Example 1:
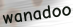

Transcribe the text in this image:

wanadoo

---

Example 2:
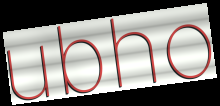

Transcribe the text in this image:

ubho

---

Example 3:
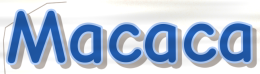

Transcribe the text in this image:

Macaca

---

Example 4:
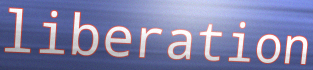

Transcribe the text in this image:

liberation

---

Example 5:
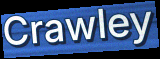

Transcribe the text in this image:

Crawley